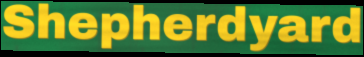
Shepherdyard